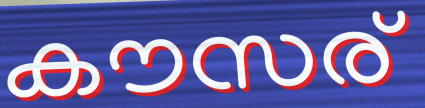
കൗസര്